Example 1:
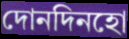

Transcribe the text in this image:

দোনদিনহো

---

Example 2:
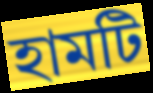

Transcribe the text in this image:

হামটি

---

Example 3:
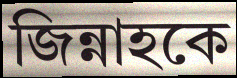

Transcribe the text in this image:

জিন্নাহকে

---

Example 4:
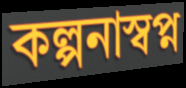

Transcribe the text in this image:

কল্পনাস্বপ্ন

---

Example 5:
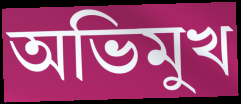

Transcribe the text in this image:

অভিমুখ